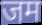
जम